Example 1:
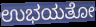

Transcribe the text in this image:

ಉಭಯತೋ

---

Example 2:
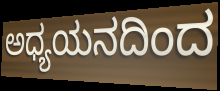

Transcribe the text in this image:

ಅಧ್ಯಯನದಿಂದ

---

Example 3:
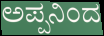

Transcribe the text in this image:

ಅಪ್ಪನಿಂದ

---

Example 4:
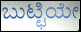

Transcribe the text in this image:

ಬುಟ್ಟಿಯೇ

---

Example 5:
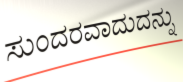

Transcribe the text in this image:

ಸುಂದರವಾದುದನ್ನು